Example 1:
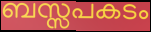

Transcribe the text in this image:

ബസ്സപകടം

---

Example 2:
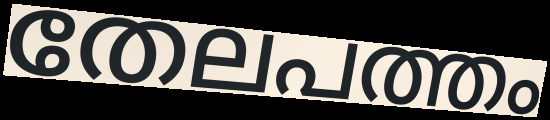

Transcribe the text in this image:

തേലപത്തം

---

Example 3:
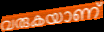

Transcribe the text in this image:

വരുകയാണ്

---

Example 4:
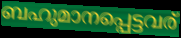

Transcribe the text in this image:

ബഹുമാനപ്പെട്ടവര്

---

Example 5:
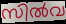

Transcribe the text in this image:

സിൽവ